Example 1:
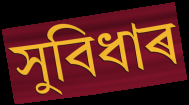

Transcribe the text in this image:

সুবিধাৰ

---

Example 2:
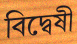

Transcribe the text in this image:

বিদ্বেষী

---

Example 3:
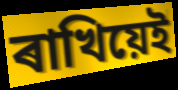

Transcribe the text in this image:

ৰাখিয়েই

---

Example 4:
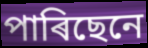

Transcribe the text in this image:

পাৰিছেনে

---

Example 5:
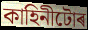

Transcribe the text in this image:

কাহিনীটোৰ